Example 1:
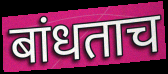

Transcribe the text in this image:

बांधताच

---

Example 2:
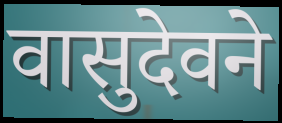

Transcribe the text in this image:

वासुदेवने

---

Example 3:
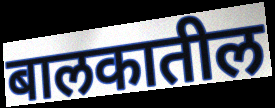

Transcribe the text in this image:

बालकातील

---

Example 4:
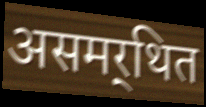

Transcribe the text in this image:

असमर्थित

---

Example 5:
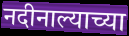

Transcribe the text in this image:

नदीनाल्याच्या